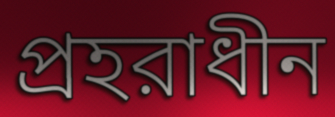
প্রহরাধীন